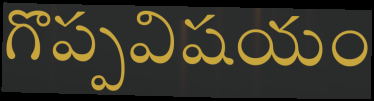
గొప్పవిషయం